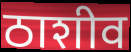
ठाशीव